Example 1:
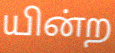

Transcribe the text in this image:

யின்ற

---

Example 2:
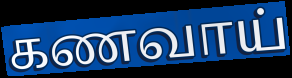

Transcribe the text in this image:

கணவாய்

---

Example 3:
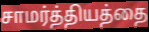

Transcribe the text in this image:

சாமர்த்தியத்தை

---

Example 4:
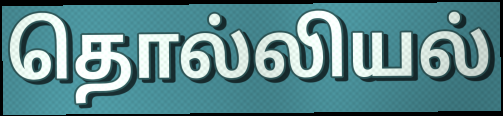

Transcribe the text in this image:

தொல்லியல்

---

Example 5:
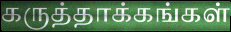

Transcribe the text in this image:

கருத்தாக்கங்கள்